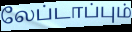
லேப்டாப்பும்